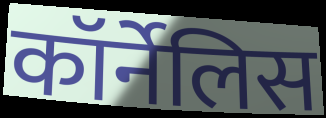
कॉर्नेलिस